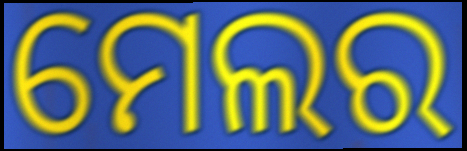
ମେଲର